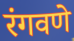
रंगवणे